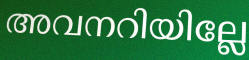
അവനറിയില്ലേ